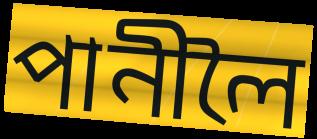
পানীলৈ